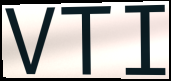
VTI